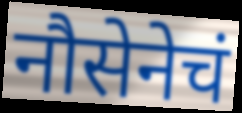
नौसेनेचं